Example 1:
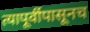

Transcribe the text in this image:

त्यापूर्वीपासूनच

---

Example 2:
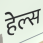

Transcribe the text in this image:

हेल्स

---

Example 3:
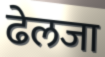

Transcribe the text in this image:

ढेलजा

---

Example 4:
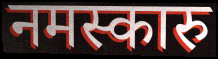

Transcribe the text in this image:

नमस्कारु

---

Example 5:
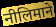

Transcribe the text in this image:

नीलिमाने